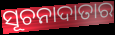
ସୂଚନାଦାତାର